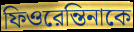
ফিওরেন্তিনাকে